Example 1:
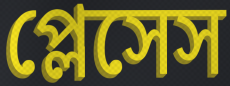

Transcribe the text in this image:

প্লেসেস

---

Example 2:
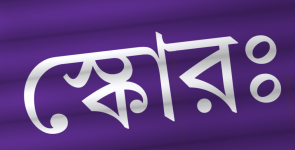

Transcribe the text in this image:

স্কোরঃ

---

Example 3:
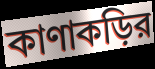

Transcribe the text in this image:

কাণাকড়ির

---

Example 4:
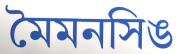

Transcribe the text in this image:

মৈমনসিঙ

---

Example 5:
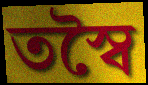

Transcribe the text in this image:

তস্বৈ